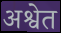
अश्वेत